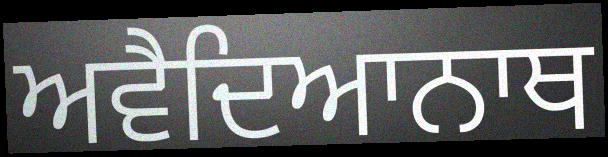
ਅਵੈਦਿਆਨਾਥ